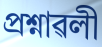
প্ৰশ্নাৱলী